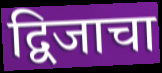
द्विजाचा